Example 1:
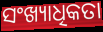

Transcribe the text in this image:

ସଂଖ୍ୟାଧିକତା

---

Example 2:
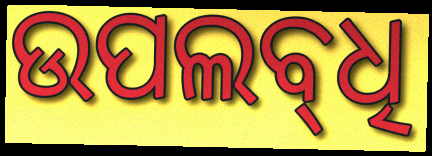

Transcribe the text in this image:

ଉପଲବ୍‌ଧି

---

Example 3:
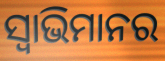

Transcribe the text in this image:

ସ୍ଵାଭିମାନର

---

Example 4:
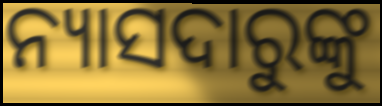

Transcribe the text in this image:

ନ୍ୟାସଦାରୁଙ୍କୁ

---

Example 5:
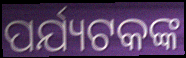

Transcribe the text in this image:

ପର୍ଯ୍ୟଟକଙ୍କ